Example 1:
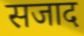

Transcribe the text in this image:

सजाद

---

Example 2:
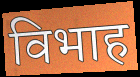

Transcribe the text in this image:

विभाह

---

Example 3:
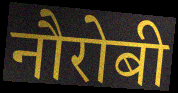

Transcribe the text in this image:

नौरोबी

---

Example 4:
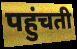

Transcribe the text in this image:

पहुंचती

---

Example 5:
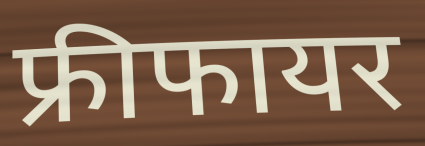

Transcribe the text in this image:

फ्रीफायर